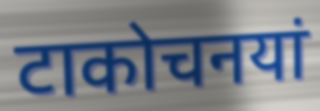
टाकोचनयां